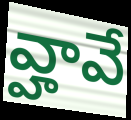
వ్హావే